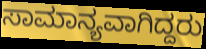
ಸಾಮಾನ್ಯವಾಗಿದ್ದರು